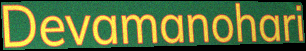
Devamanohari